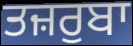
ਤਜ਼ਰੁਬਾ